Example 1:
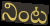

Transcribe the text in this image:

నింట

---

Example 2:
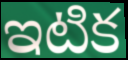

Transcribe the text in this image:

ఇటిక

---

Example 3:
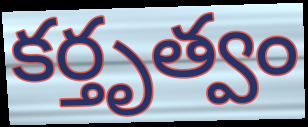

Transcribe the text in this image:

కర్తృత్వం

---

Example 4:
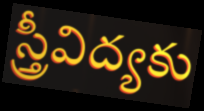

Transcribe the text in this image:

స్త్రీవిద్యకు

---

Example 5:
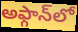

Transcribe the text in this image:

అఫ్గాన్‌లో